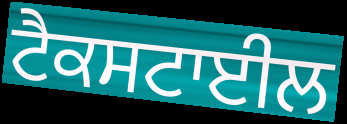
ਟੈਕਸਟਾਈਲ